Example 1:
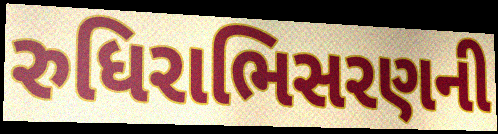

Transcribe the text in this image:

રુધિરાભિસરણની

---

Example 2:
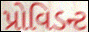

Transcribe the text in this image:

પ્રોવિડન્ટ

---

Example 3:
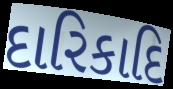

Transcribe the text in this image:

દારિકાદિ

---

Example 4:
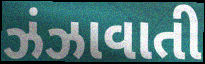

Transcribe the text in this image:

ઝંઝાવાતી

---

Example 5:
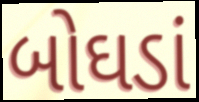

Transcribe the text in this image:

બોઘડાં